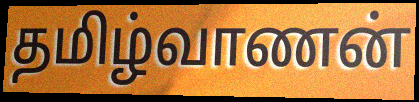
தமிழ்வாணன்